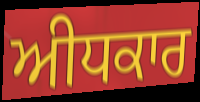
ਅੀਧਕਾਰ